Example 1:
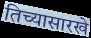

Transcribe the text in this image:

तिच्यासारखे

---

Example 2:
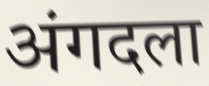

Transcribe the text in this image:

अंगदला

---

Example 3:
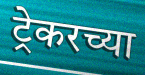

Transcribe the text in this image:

ट्रेकरच्या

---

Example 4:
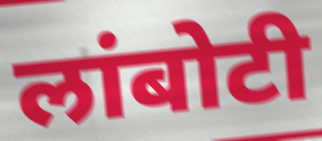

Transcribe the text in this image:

लांबोटी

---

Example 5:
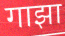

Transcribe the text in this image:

गाझा